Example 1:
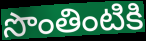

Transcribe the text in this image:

సొంతింటికి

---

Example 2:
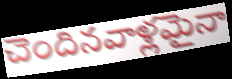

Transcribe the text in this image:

చెందినవాళ్లమైనా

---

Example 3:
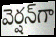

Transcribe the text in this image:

వెర్షన్‌గా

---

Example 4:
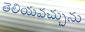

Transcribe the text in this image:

తెలియవచ్చును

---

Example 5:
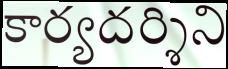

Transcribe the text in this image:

కార్యదర్శిని